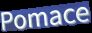
Pomace